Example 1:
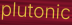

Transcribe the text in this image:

plutonic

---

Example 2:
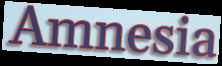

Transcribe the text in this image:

Amnesia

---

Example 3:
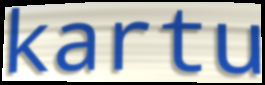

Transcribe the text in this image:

kartu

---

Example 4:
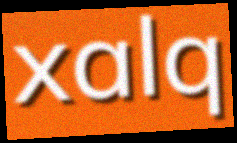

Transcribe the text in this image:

xalq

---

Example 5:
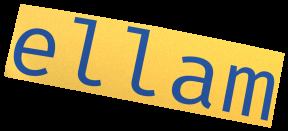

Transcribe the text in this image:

ellam